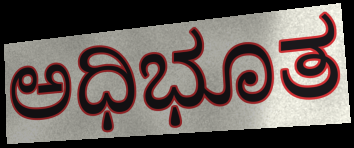
ಅಧಿಭೂತ